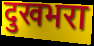
दुखभरा